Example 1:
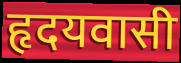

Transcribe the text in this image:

हृदयवासी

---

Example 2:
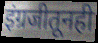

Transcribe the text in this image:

इंग्रजीतूनही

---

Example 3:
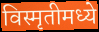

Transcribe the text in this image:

विस्मृतीमध्ये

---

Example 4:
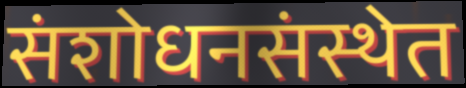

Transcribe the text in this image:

संशोधनसंस्थेत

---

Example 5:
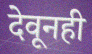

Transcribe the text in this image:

देवूनही